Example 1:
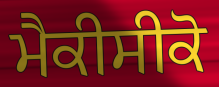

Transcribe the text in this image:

ਮੈਕੀਸੀਕੋ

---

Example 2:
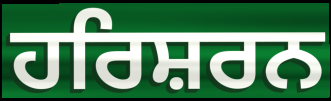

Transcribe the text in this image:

ਹਰਿਸ਼ਰਨ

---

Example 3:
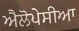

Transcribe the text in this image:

ਐਲੋਪੇਸੀਆ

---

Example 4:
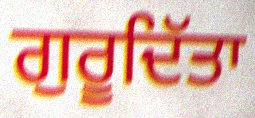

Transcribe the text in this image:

ਗੁਰੂਦਿੱਤਾ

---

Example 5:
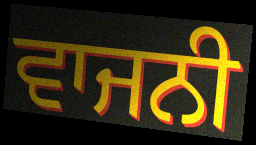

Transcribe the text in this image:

ਵਾਜਨੀ